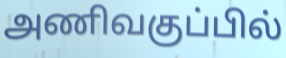
அணிவகுப்பில்